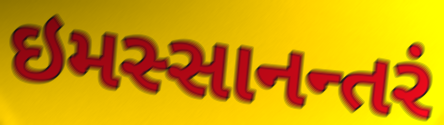
ઇમસ્સાનન્તરં